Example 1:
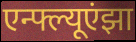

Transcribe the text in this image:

एन्फ्ल्यूएंझा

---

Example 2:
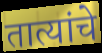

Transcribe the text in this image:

तात्यांचे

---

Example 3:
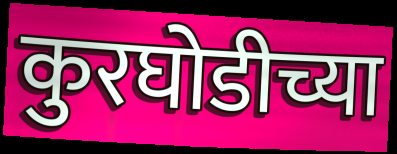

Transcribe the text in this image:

कुरघोडीच्या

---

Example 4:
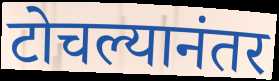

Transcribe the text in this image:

टोचल्यानंतर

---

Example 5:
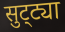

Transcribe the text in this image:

सुट्‌ट्या